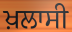
ਖ਼ਲਾਸੀ